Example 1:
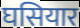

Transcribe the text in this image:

घसियार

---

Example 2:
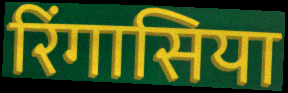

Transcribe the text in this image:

रिंगासिया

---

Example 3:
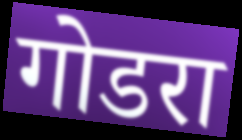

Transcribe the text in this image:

गोडरा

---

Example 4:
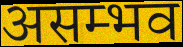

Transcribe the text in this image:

असम्भव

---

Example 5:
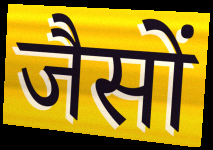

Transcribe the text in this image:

जैसों